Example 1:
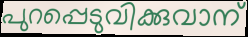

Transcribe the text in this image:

പുറപ്പെടുവിക്കുവാന്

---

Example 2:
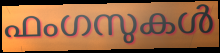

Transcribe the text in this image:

ഫംഗസുകൾ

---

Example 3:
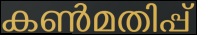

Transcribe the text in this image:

കൺമതിപ്പ്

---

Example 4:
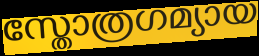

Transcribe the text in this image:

സ്തോത്രഗമ്യായ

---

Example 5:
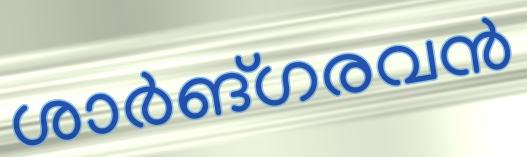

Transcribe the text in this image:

ശാർങ്ഗരവൻ